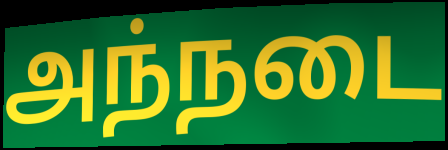
அந்நடை